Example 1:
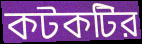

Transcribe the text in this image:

কটকটির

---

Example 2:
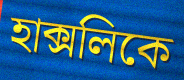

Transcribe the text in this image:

হাক্সলিকে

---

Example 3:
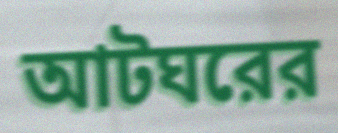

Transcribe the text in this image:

আটঘরের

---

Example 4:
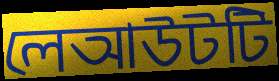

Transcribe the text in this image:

লেআউটটি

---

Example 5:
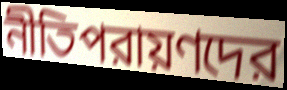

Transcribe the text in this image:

নীতিপরায়ণদের